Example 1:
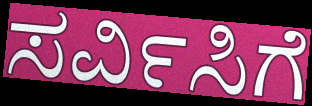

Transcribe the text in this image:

ಸರ್ವಿಸಿಗೆ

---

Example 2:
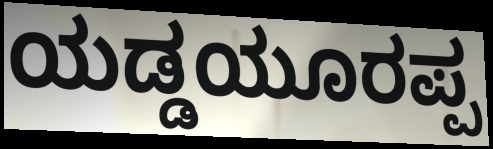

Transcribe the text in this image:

ಯಡ್ಡಯೂರಪ್ಪ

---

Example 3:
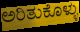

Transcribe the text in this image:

ಅರಿತುಕೊಳ್ಳು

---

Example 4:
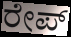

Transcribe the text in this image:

ರೇಪ್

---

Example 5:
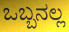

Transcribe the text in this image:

ಒಬ್ಬನಲ್ಲ